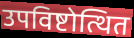
उपविष्टोत्थित